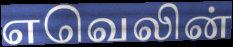
எவெலின்